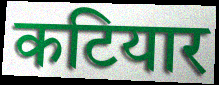
कटियार